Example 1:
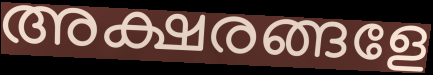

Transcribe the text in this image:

അക്ഷരങ്ങളേ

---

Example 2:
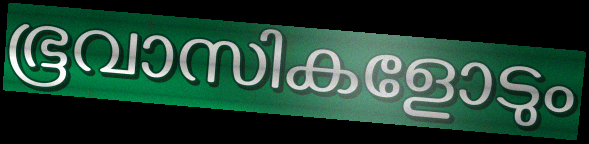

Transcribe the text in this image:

ഭൂവാസികളോടും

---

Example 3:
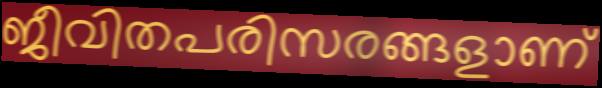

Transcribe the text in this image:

ജീവിതപരിസരങ്ങളാണ്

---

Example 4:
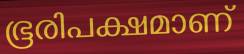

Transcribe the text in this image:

ഭൂരിപക്ഷമാണ്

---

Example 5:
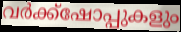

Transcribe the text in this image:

വർക്ക്ഷോപ്പുകളും